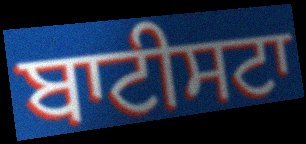
ਬਾਟੀਸਟਾ